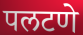
पलटणे